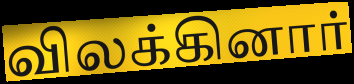
விலக்கினார்